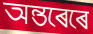
অন্তৰেৰে